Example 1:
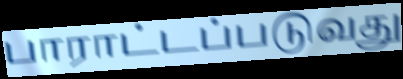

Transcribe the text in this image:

பாராட்டப்படுவது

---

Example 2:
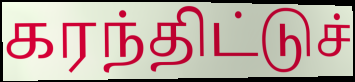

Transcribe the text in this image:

கரந்திட்டுச்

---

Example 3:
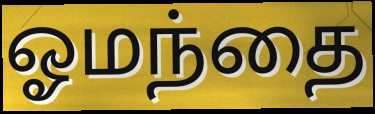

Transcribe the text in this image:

ஓமந்தை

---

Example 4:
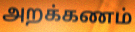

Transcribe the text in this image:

அறக்கணம்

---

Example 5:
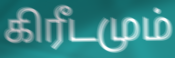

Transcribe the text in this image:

கிரீடமும்